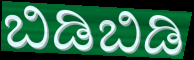
ಬಿಡಿಬಿಡಿ